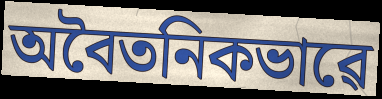
অবৈতনিকভাৱে